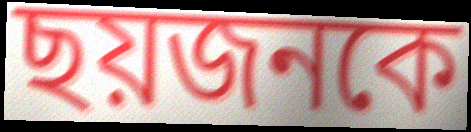
ছয়জনকে